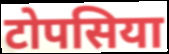
टोपसिया